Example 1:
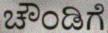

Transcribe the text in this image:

ಚೌಂಡಿಗೆ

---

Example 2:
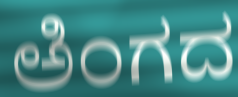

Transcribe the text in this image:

ಅಿಂಗದ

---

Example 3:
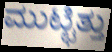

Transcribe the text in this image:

ಮುಟ್ಟಿತ್ತು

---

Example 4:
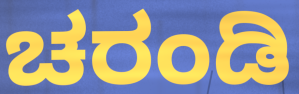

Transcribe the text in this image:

ಚರಂಡಿ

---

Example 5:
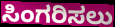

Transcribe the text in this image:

ಸಿಂಗರಿಸಲು